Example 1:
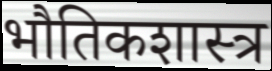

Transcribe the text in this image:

भौतिकशास्त्र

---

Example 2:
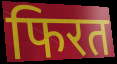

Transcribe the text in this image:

फिरत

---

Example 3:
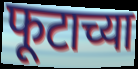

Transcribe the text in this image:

फूटाच्या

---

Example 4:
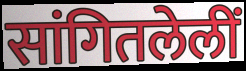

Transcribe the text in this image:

सांगितलेलीं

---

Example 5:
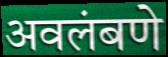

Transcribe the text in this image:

अवलंबणे